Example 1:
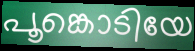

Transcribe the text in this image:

പൂങ്കൊടിയേ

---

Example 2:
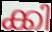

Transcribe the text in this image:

ക്കി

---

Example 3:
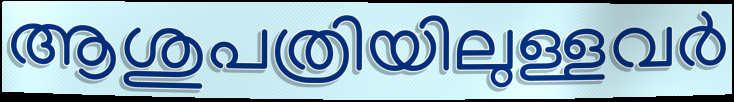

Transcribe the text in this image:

ആശുപത്രിയിലുള്ളവർ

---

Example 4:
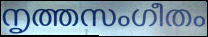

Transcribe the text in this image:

നൃത്തസംഗീതം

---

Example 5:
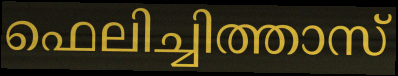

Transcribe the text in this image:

ഫെലിച്ചിത്താസ്